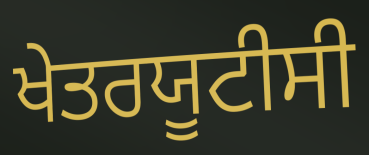
ਖੇਤਰਯੂਟੀਸੀ